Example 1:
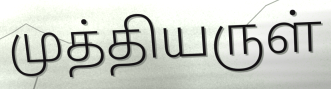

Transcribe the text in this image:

முத்தியருள்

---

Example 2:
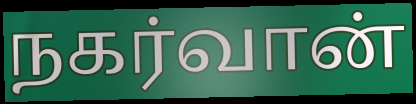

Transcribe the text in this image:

நகர்வான்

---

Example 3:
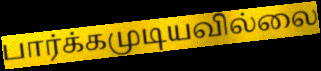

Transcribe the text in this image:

பார்க்கமுடியவில்லை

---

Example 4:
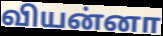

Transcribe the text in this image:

வியன்னா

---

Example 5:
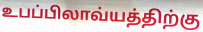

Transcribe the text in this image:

உபப்பிலாவ்யத்திற்கு